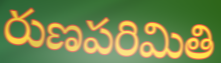
రుణపరిమితి